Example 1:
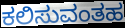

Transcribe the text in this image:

ಕಲಿಸುವಂತಹ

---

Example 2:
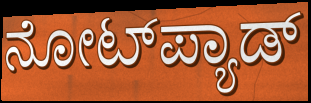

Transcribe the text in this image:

ನೋಟ್‌ಪ್ಯಾಡ್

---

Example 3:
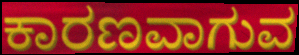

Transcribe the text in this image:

ಕಾರಣವಾಗುವ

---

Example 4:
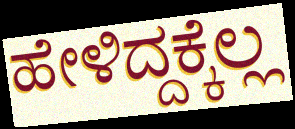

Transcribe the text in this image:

ಹೇಳಿದ್ದಕ್ಕೆಲ್ಲ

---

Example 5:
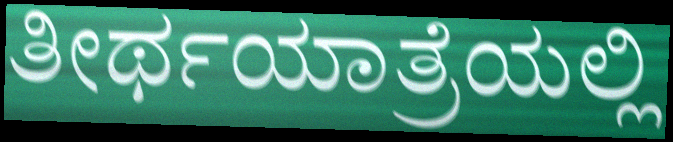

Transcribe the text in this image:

ತೀರ್ಥಯಾತ್ರೆಯಲ್ಲಿ